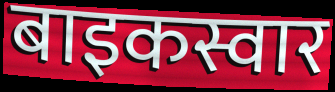
बाइकस्वार